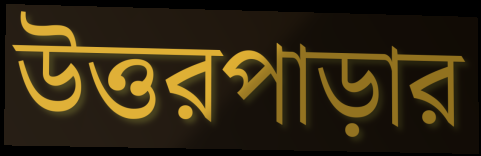
উত্তরপাড়ার